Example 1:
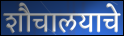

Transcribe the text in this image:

शौचालयाचे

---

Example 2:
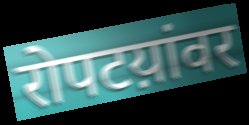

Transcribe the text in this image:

रोपटय़ांवर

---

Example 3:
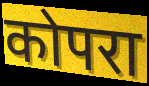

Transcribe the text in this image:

कोपरा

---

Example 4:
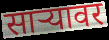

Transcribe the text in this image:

साऱ्यावर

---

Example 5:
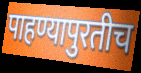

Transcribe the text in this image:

पाहण्यापुरतीच